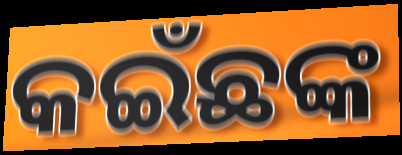
କଇଁଛଙ୍କ